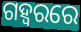
ଗହ୍ୱରରେ